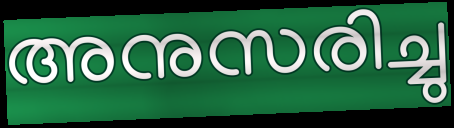
അനുസരിച്ചു